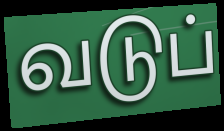
வடுப்